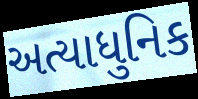
અત્યાધુનિક